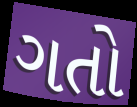
ગતો